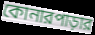
কোনারপাড়ার